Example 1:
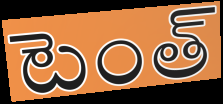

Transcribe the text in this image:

టెంత్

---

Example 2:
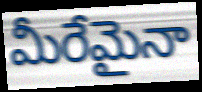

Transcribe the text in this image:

మీరేమైనా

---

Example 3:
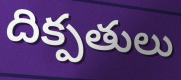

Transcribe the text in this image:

దిక్పతులు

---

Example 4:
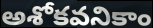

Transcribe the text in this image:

అశోకవనికాం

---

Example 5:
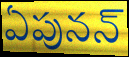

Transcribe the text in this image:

ఏపునన్